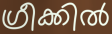
ഗ്രീക്കിൽ